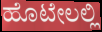
ಹೊಟೇಲಲ್ಲಿ